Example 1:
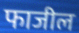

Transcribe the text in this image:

फाजील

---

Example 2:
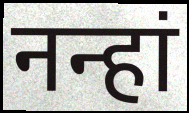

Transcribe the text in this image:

नन्हां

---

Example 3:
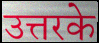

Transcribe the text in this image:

उत्तरके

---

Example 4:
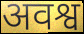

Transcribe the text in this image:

अवश्व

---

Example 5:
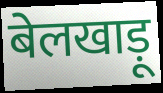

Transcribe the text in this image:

बेलखाड़ू